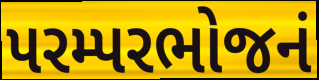
પરમ્પરભોજનં